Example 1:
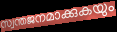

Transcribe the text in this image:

സ്വന്തജനമാക്കുകയും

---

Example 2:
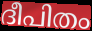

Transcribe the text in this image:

ദീപിതം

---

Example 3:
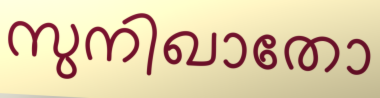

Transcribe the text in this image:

സുനിഖാതോ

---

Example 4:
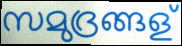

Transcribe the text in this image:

സമുദ്രങ്ങള്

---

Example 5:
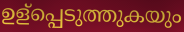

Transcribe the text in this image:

ഉള്പ്പെടുത്തുകയും